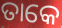
ତାକେ